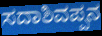
ಸದಾಶಿವಪ್ಪನ